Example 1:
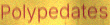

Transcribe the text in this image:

Polypedates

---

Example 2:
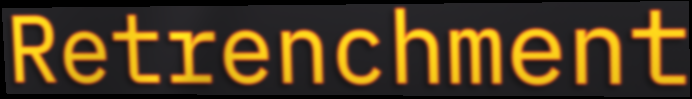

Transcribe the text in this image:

Retrenchment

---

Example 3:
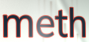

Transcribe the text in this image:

meth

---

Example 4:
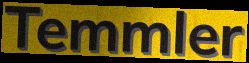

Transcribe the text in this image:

Temmler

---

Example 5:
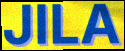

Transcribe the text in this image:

JILA